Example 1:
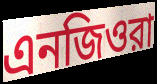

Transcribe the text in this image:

এনজিওরা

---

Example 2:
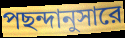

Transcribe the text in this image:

পছন্দানুসারে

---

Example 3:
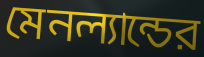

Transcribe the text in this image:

মেনল্যান্ডের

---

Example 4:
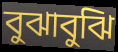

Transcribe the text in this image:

বুঝাবুঝি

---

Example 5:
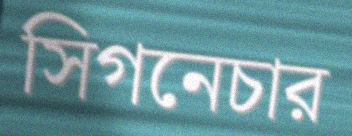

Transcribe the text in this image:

সিগনেচার